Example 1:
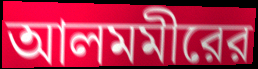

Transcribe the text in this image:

আলমমীরের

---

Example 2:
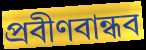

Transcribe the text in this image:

প্রবীণবান্ধব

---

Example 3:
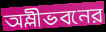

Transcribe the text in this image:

অম্লীভবনের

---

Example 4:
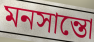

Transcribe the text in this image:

মনসান্তো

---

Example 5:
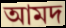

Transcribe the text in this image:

আমদ